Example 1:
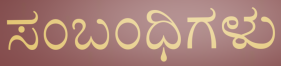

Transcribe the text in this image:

ಸಂಬಂಧಿಗಳು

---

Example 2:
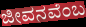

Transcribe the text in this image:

ಜೀವನವೆಂಬ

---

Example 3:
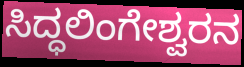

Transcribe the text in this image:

ಸಿದ್ಧಲಿಂಗೇಶ್ವರನ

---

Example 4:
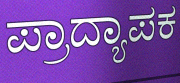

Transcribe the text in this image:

ಪ್ರಾದ್ಯಾಪಕ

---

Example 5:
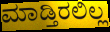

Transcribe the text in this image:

ಮಾಡ್ತಿರಲಿಲ್ಲ